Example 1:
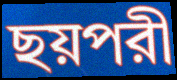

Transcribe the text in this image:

ছয়পরী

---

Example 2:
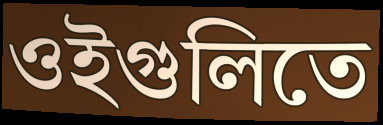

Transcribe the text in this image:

ওইগুলিতে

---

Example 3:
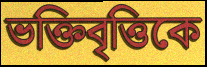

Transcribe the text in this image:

ভক্তিবৃত্তিকে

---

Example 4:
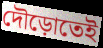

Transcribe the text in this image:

দৌড়োতেই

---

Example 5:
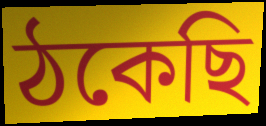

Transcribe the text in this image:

ঠকেছি